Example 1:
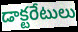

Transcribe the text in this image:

డాక్టరేటులు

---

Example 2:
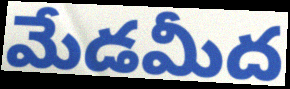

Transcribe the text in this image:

మేడమీద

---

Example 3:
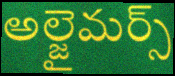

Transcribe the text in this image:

అల్జైమర్స్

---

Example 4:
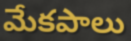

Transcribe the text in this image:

మేకపాలు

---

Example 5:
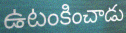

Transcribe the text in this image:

ఉటంకించాడు